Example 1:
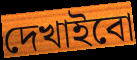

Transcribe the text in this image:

দেখাইবো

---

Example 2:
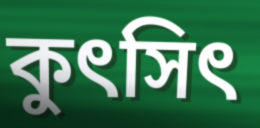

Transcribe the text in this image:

কুৎসিৎ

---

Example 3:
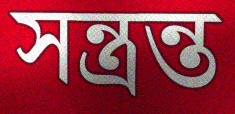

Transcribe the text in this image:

সন্ত্রন্ত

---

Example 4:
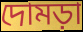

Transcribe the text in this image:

দোমড়া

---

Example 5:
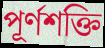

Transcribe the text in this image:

পূর্ণশক্তি